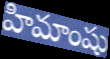
హిమాంషు